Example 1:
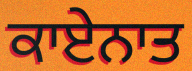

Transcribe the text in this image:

ਕਾਏਨਾਤ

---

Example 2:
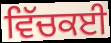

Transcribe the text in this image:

ਵਿੱਚਕਈ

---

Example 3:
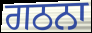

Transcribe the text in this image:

ਗਠਨਾ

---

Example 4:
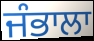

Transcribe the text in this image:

ਜੰਭਾਲਾ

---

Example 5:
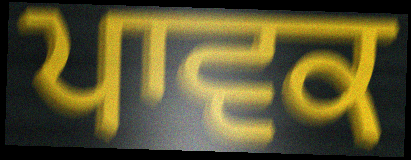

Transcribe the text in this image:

ਪਾਵਕ